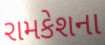
રામકેશના